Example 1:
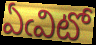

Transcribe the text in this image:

ఏఁవిటో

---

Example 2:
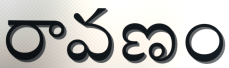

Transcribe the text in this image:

రావణం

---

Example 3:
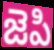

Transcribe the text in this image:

జెపి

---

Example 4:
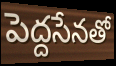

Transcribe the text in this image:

పెద్దసేనతో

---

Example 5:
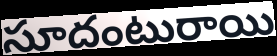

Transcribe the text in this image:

సూదంటురాయి